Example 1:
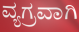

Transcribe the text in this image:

ವ್ಯಗ್ರವಾಗಿ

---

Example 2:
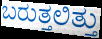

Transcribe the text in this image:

ಬರುತ್ತಲಿತ್ತು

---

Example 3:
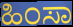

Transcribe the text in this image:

ಹಿಂಸಾ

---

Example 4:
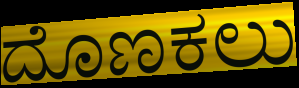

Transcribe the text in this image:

ದೊಣಕಲು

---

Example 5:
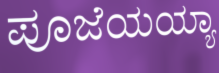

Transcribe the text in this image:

ಪೂಜೆಯಯ್ಯಾ